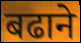
बढाने